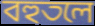
বহুতলে